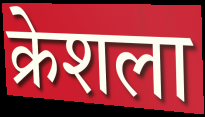
क्रेशला